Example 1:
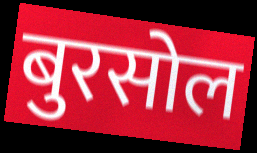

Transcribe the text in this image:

बुरसोल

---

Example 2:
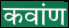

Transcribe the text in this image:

कवांण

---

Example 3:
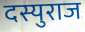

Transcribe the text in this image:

दस्युराज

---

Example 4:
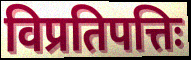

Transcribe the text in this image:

विप्रतिपत्तिः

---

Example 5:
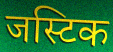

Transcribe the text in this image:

जस्टिक